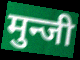
मुन्जी